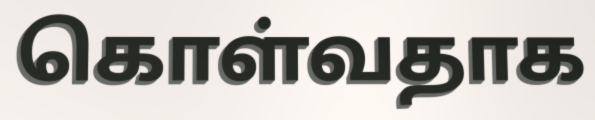
கொள்வதாக